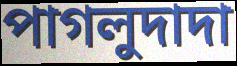
পাগলুদাদা